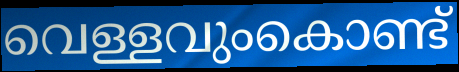
വെള്ളവുംകൊണ്ട്